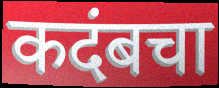
कदंबचा